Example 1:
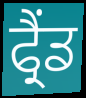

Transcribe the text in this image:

ਫ੍ਰੈਂਡ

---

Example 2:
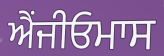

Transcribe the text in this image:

ਐਂਜੀਓਮਾਸ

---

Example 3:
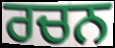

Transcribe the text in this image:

ਰਚਨ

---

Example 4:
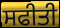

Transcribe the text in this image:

ਸਫੀਤੀ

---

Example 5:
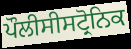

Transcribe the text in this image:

ਪੌਲੀਸੀਸਟ੍ਰੋਨਿਕ